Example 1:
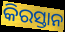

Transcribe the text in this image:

କିରସ୍ତାନ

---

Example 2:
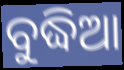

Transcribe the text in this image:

ବୁଦ୍ଧିଆ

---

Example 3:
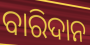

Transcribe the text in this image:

ବାରିଦାନ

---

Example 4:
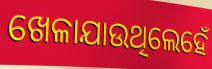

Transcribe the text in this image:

ଖେଳାଯାଉଥିଲେହେଁ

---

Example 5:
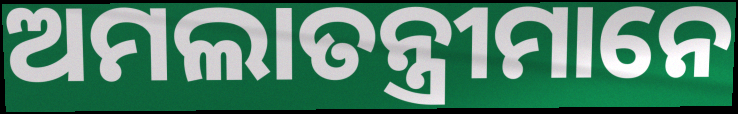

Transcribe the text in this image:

ଅମଲାତନ୍ତ୍ରୀମାନେ